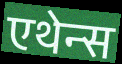
एथेन्स